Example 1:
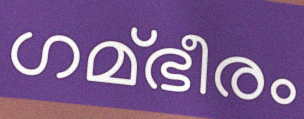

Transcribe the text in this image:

ഗമ്ഭീരം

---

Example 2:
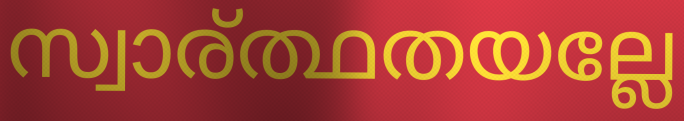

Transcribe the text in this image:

സ്വാര്ത്ഥതയല്ലേ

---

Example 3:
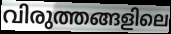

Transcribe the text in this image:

വിരുത്തങ്ങളിലെ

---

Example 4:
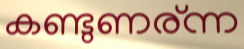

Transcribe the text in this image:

കണ്ടുണര്ന്ന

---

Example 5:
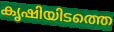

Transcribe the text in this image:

കൃഷിയിടത്തെ